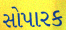
સોપારક